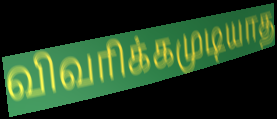
விவரிக்கமுடியாத